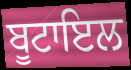
ਬੂਟਾਇਲ